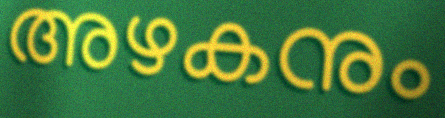
അഴകനും